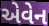
એવેન